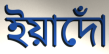
ইয়াদোঁ